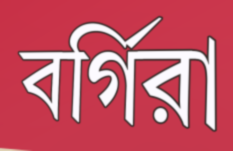
বর্গিরা